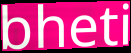
bheti